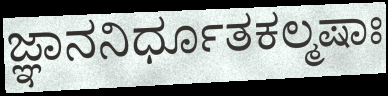
ಜ್ಞಾನನಿರ್ಧೂತಕಲ್ಮಷಾಃ